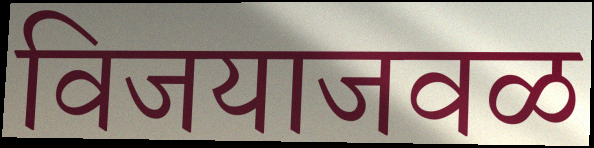
विजयाजवळ